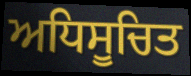
ਅਧਿਸੂਚਿਤ